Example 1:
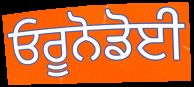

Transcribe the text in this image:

ਓਰੂਨੋਡੋਈ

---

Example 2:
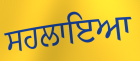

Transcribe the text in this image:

ਸਹਲਾਇਆ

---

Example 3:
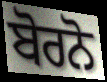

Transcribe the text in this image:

ਬੋਰਨੋ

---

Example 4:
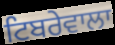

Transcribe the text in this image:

ਟਿਬਰੇਵਾਲਾ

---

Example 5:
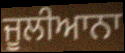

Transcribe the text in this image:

ਜੂਲੀਆਨਾ